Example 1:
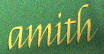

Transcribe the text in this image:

amith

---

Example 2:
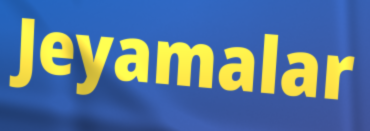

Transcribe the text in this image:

Jeyamalar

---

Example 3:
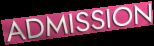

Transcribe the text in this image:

ADMISSION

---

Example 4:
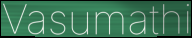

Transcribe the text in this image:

Vasumathi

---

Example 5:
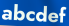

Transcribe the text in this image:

abcdef